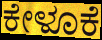
ಕೇಳೂಕೆ